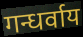
गन्धर्वाय